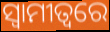
ସ୍ୱାମୀତ୍ୱରେ